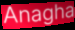
Anagha